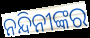
ନନ୍ଦିନୀଙ୍କର